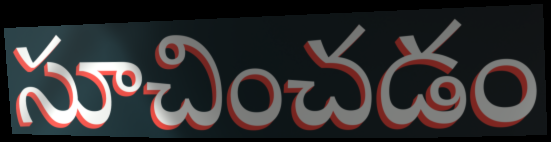
సూచించడం